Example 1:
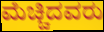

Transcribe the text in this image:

ಮೆಚ್ಚಿದವರು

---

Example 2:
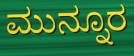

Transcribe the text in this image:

ಮುನ್ನೂರ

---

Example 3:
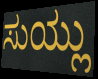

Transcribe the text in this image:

ಸುಯ್ಲು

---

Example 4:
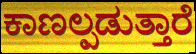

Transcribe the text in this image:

ಕಾಣಲ್ಪಡುತ್ತಾರೆ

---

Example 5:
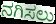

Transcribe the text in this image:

ನಗಿಸಲು